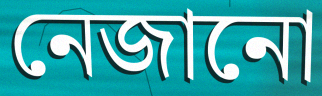
নেজানো